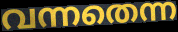
വന്നതെന്ന